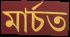
মাৰ্চত